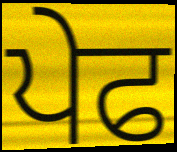
ਪੇਫ